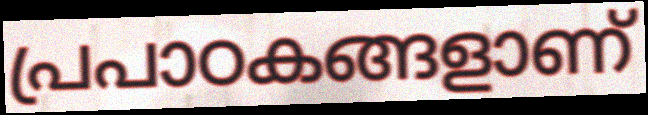
പ്രപാഠകങ്ങളാണ്